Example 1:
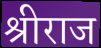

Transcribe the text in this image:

श्रीराज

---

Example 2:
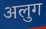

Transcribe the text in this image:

अलुग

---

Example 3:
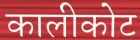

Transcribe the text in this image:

कालीकोट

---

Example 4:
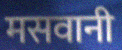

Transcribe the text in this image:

मसवानी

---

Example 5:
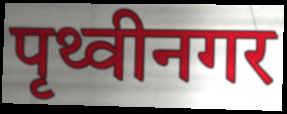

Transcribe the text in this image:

पृथ्वीनगर